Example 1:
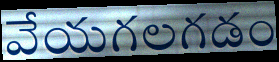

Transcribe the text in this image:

వేయగలగడం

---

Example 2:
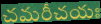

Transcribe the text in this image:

చమరీచయః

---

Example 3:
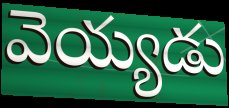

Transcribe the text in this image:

వెయ్యడు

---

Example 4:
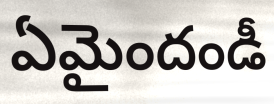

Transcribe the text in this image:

ఏమైందండీ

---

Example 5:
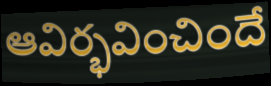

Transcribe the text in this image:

ఆవిర్భవించిందే